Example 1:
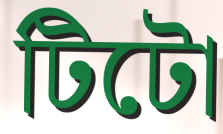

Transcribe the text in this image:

টিটো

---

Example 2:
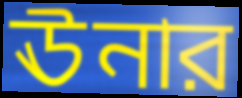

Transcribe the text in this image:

ঊনার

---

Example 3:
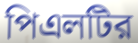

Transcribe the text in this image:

পিএলটির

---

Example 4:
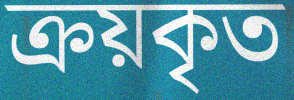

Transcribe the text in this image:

ক্রয়কৃত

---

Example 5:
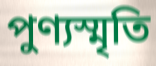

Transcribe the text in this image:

পুণ্যস্মৃতি